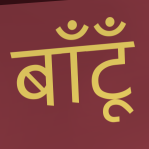
बाँटूँ